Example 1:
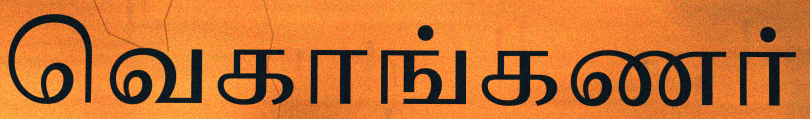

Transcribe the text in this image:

வெகாங்கணர்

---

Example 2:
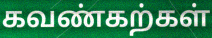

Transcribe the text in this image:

கவண்கற்கள்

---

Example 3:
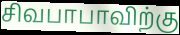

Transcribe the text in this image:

சிவபாபாவிற்கு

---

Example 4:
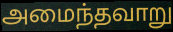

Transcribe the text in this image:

அமைந்தவாறு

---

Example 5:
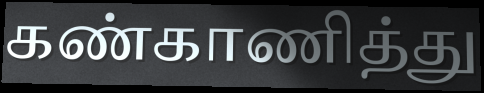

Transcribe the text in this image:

கண்காணித்து